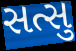
સત્સુ